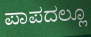
ಪಾಪದಲ್ಲೂ